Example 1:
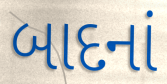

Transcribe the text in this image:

બાદનાં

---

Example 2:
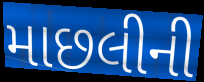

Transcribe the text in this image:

માછલીની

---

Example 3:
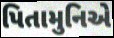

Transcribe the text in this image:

પિતામુનિએ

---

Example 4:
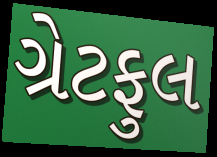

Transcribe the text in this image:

ગ્રેટફુલ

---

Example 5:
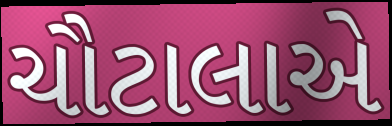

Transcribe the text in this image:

ચૌટાલાએ